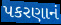
પકરણાનં